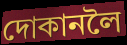
দোকানলৈ